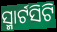
ସ୍ମାର୍ଟସିଟି